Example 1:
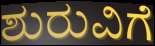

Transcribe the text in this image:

ಶುರುವಿಗೆ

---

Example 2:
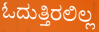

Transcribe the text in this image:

ಓದುತ್ತಿರಲಿಲ್ಲ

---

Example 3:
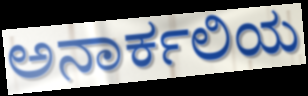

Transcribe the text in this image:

ಅನಾರ್ಕಲಿಯ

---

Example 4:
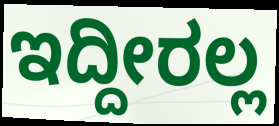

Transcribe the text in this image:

ಇದ್ದೀರಲ್ಲ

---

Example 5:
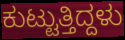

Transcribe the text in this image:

ಕುಟ್ಟುತ್ತಿದ್ದಳು